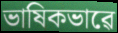
ভাষিকভাৱে